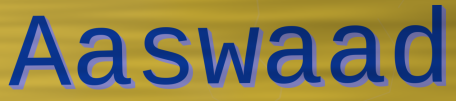
Aaswaad